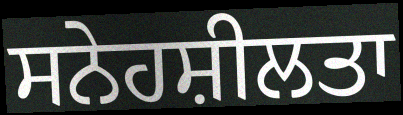
ਸਨੇਹਸ਼ੀਲਤਾ